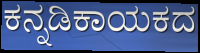
ಕನ್ನಡಿಕಾಯಕದ